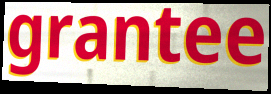
grantee